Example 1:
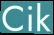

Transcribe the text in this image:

Cik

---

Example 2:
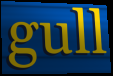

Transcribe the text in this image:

gull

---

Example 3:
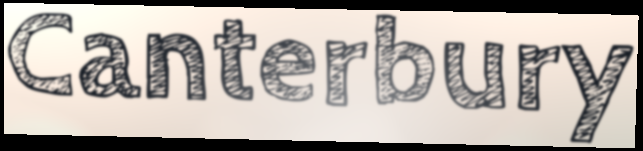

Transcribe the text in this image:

Canterbury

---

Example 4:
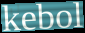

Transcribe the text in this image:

kebol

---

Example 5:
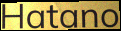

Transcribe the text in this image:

Hatano